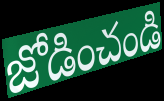
జోడించండి